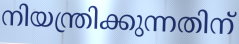
നിയന്ത്രിക്കുന്നതിന്